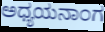
ಅಧ್ಯಯನಾಂಗ